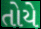
તોયે